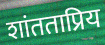
शांतताप्रिय